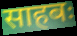
साहबः